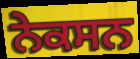
ਨੇਕਸਨ